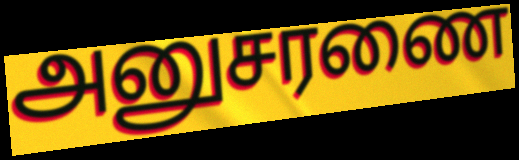
அனுசரணை